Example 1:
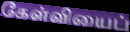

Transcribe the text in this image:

கேள்வியைப்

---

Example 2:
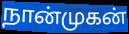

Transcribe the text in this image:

நான்முகன்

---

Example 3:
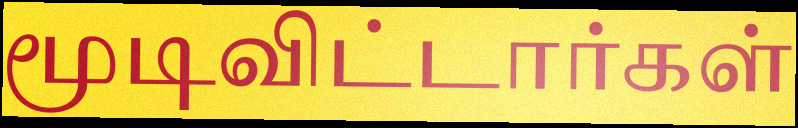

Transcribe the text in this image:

மூடிவிட்டார்கள்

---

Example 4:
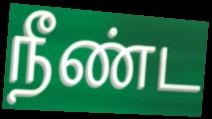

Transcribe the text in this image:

நீண்ட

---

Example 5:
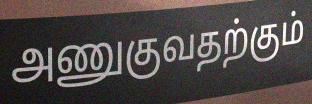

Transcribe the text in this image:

அணுகுவதற்கும்